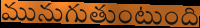
మునుగుతుంటుంది